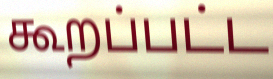
கூறப்பட்ட